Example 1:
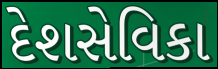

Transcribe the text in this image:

દેશસેવિકા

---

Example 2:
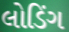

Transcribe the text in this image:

લોડિંગ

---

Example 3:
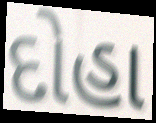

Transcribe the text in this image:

દોહા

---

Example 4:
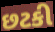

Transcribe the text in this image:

છટકી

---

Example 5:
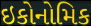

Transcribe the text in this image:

ઇકોનોમિક